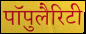
पॉपुलैरिटी